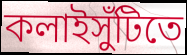
কলাইসুঁটিতে